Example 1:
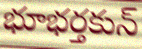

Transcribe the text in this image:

భూభర్తకున్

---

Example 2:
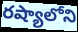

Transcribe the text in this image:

రష్యాలోని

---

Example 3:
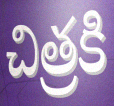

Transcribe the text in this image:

చిత్రకి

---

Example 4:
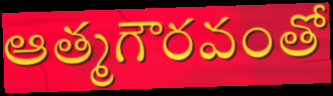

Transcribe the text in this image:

ఆత్మగౌరవంతో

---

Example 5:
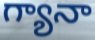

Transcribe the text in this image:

గ్యానా